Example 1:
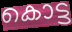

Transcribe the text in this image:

കൊട്ട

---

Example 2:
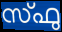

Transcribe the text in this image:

സ്ഫു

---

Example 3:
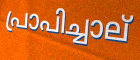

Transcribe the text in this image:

പ്രാപിച്ചാല്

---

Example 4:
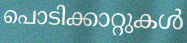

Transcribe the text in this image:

പൊടിക്കാറ്റുകൾ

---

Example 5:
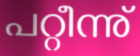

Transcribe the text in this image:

പറ്റീന്നു്